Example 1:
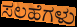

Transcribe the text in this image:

ಸಲಹೆಗಳು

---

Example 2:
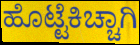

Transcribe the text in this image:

ಹೊಟ್ಟೆಕಿಚ್ಚಾಗಿ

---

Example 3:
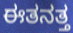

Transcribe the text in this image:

ಈತನತ್ತ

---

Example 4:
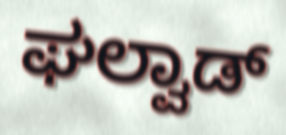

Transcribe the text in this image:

ಘಲ್ವಾಡ್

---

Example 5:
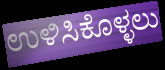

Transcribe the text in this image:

ಉಳಿಸಿಕೊಳ್ಳಲು